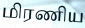
மிரணிய